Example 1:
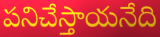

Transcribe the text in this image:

పనిచేస్తాయనేది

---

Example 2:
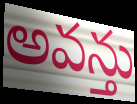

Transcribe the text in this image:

అవన్తు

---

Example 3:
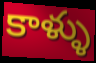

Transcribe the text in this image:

కాళ్ళు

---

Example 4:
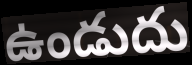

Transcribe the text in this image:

ఉండుదు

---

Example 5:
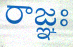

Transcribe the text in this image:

రాజ్ఞః